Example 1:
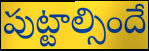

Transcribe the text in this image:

పుట్టాల్సిందే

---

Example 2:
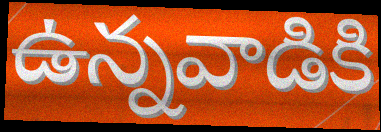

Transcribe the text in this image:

ఉన్నవాడికి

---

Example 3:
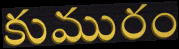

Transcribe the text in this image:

కుమురం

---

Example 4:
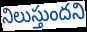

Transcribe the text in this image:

నిలుస్తుందని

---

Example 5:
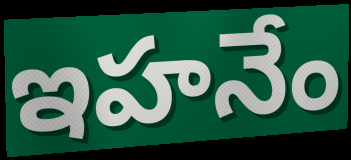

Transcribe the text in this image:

ఇహనేం